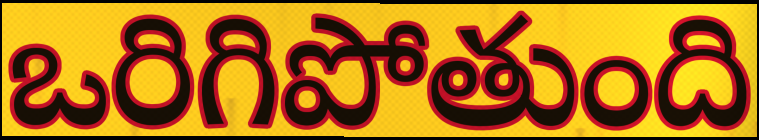
ఒరిగిపోతుంది